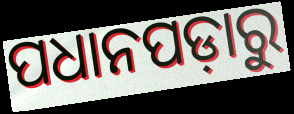
ପଧାନପଡ଼ାରୁ